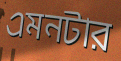
এমনটার